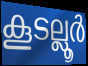
കൂടല്ലൂർ